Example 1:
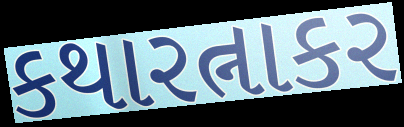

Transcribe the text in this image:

કથારત્નાકર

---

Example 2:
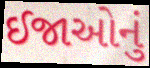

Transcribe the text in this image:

ઈજાઓનું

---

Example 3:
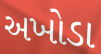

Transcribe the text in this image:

અખોડા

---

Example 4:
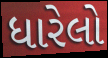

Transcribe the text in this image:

ધારેલો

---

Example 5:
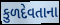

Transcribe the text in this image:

કુળદેવતાના